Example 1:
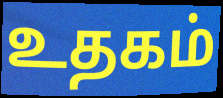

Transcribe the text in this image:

உதகம்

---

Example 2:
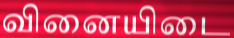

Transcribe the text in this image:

வினையிடை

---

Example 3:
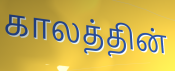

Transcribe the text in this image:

காலத்தின்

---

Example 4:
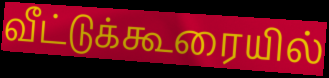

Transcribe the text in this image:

வீட்டுக்கூரையில்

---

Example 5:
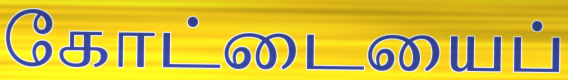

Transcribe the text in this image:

கோட்டையைப்